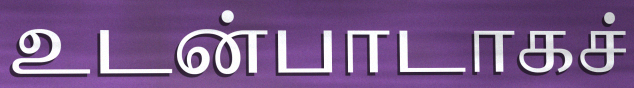
உடன்பாடாகச்